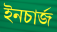
ইনচার্জ